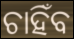
ଚାହିଁବ